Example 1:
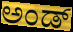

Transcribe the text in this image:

ಅಂಡ್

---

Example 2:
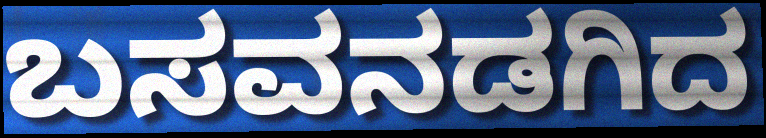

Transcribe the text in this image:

ಬಸವನಡಗಿದ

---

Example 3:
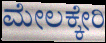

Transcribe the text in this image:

ಮೇಲಕ್ಕೇರಿ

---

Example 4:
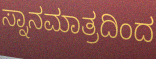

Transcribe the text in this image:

ಸ್ನಾನಮಾತ್ರದಿಂದ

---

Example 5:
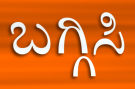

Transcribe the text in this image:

ಬಗ್ಗಿಸಿ